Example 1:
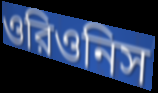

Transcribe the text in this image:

ওরিওনিস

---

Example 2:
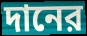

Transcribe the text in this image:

দানের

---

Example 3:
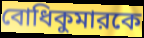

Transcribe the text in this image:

বোধিকুমারকে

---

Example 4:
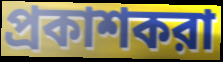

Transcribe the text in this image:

প্রকাশকরা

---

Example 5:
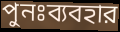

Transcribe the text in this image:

পুনঃব্যবহার